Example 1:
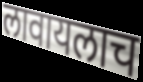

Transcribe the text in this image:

लावायलाच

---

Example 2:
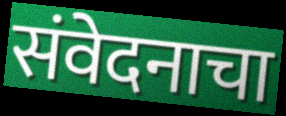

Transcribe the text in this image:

संवेदनाचा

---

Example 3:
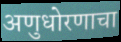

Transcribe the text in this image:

अणुधोरणाचा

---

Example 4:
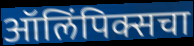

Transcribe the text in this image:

ऑलिंपिक्सचा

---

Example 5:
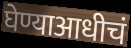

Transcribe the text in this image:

घेण्याआधीचं